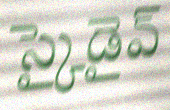
స్కైడైవ్